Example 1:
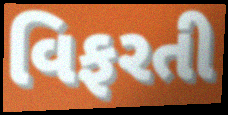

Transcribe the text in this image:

વિફરતી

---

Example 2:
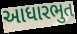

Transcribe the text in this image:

આધારભુત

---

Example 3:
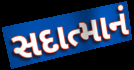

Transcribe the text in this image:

સદાત્માનં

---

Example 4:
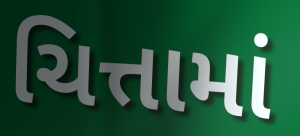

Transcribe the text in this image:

ચિત્તામાં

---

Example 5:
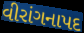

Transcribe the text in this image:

વીરાંગનાપદ